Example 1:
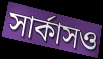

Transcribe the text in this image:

সার্কাসও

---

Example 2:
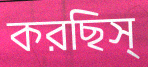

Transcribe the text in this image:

করছিস্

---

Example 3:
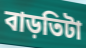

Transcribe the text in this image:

বাড়তিটা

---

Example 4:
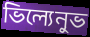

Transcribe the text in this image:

ভিল্যেনুভ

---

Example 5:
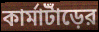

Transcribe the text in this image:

কার্মাটাঁড়ের